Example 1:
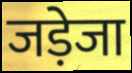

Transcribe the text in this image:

जड़ेजा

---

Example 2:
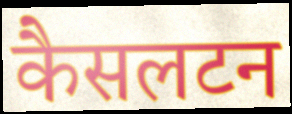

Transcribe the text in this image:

कैसलटन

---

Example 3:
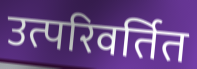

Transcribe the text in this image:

उत्परिवर्तित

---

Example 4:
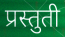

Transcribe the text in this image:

प्रस्तुती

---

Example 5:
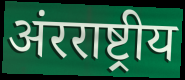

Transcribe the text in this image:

अंरराष्ट्रीय